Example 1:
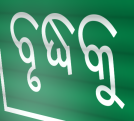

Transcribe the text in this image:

ବୃଦ୍ଧକୁ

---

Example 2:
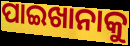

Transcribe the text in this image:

ପାଇଖାନାକୁ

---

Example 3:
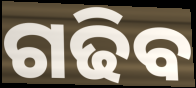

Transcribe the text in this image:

ଗଢିବ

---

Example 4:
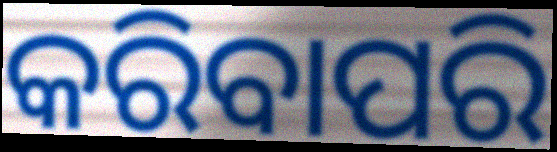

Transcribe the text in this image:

କରିବାପରି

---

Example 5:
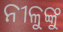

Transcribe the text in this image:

ନୀଳୁଙ୍କୁ